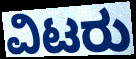
ವಿಟರು